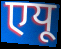
एयू